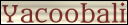
Yacoobali